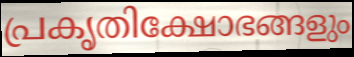
പ്രകൃതിക്ഷോഭങ്ങളും